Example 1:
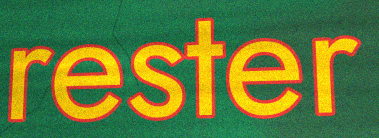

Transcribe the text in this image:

rester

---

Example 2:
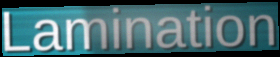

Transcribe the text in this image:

Lamination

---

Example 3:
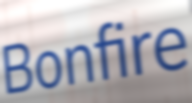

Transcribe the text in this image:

Bonfire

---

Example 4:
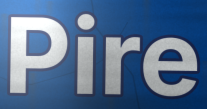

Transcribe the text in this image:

Pire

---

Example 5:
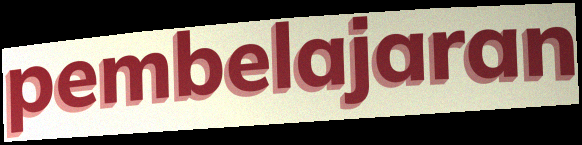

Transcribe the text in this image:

pembelajaran